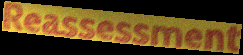
Reassessment